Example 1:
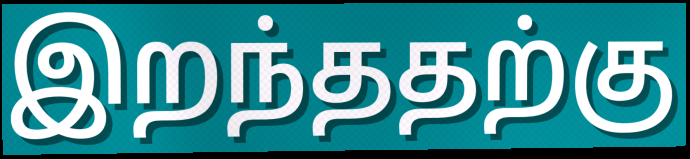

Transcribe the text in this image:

இறந்ததற்கு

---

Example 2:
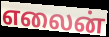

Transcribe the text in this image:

எலைன்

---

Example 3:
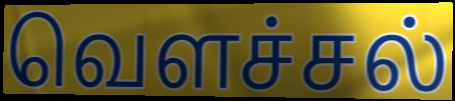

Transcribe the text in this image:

வெளச்சல்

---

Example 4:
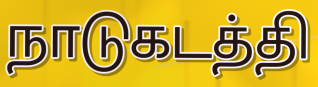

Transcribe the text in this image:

நாடுகடத்தி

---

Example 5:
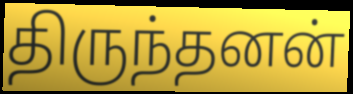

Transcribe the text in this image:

திருந்தனன்